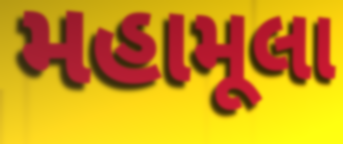
મહામૂલા